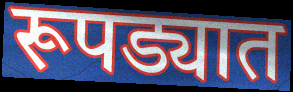
रूपड्यात